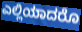
ಎಲ್ಲಿಯಾದರೊ